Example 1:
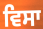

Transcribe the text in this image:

ਵਿਸਾ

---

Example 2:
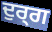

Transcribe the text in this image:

ਦੁਰ੍ਗ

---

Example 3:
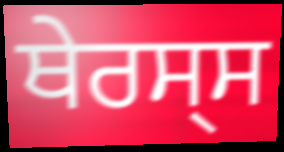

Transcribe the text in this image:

ਥੇਰਸ੍ਸ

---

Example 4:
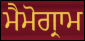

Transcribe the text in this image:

ਮੈਮੋਗ੍ਰਾਮ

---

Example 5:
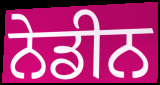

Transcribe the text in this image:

ਨੇਡੀਨ